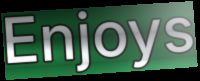
Enjoys